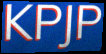
KPJP